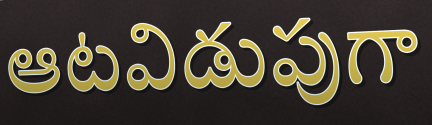
ఆటవిడుపుగా